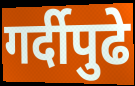
गर्दीपुढे